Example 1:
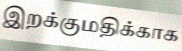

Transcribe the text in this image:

இறக்குமதிக்காக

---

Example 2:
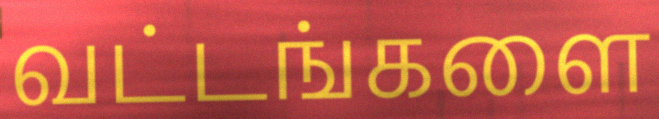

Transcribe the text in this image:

வட்டங்களை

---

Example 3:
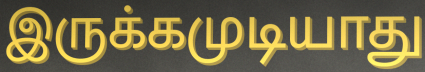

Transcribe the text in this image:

இருக்கமுடியாது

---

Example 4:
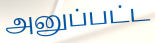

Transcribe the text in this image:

அனுப்பட்ட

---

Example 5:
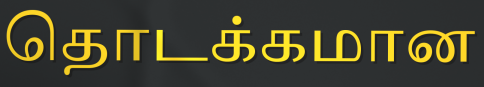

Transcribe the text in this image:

தொடக்கமான